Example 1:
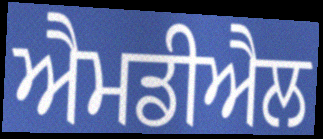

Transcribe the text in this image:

ਐਮਡੀਐਲ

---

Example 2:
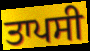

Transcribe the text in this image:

ਤਾਪਸੀ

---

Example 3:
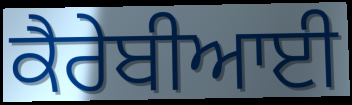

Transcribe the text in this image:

ਕੈਰੇਬੀਆਈ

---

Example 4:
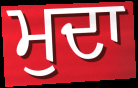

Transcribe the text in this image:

ਮੁਦਾ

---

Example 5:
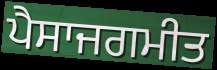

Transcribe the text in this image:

ਪੈਸਾਜਗਮੀਤ